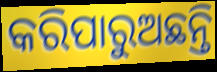
କରିପାରୁଅଛନ୍ତି